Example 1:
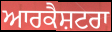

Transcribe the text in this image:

ਆਰਕੈਸ਼ਟਰਾ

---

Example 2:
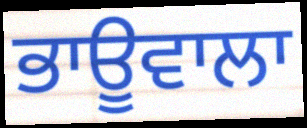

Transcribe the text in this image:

ਭਾਊਵਾਲਾ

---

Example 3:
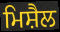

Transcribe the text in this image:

ਮਿਸ਼ੈਲ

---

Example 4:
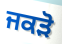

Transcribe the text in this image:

ਜਕੜੋ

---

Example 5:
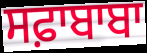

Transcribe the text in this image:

ਸਫ਼ਾਬਾਬਾ